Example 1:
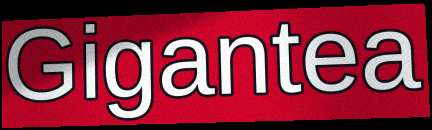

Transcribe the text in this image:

Gigantea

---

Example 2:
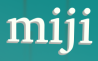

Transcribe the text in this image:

miji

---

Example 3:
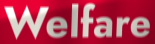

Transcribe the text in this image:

Welfare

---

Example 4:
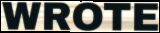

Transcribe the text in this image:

WROTE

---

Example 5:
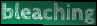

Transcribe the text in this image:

bleaching